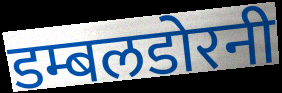
डम्बलडोरनी